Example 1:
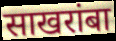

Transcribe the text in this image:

साखरांबा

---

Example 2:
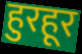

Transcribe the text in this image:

हुरहूर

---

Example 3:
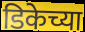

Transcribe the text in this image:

डिकेच्या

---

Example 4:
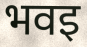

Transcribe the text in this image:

भवइ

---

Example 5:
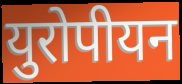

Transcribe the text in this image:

युरोपीयन